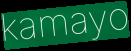
kamayo